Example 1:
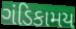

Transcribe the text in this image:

ગંડિકામય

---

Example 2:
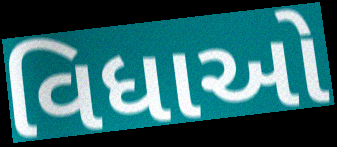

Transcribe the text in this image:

વિધાઓ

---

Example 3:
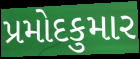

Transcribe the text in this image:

પ્રમોદકુમાર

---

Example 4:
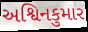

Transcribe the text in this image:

અશ્વિનકુમાર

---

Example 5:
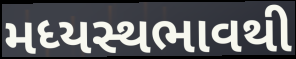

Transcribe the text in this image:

મધ્યસ્થભાવથી